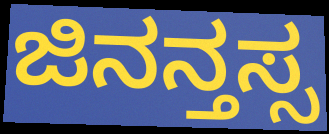
ಜಿನನ್ತಸ್ಸ